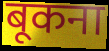
बूकना